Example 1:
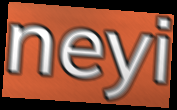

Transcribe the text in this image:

neyi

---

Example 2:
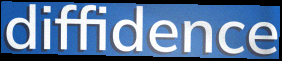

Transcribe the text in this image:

diffidence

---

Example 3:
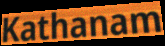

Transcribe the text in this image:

Kathanam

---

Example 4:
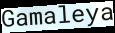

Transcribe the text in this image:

Gamaleya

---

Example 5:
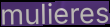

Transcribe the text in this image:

mulieres